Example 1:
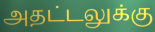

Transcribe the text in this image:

அதட்டலுக்கு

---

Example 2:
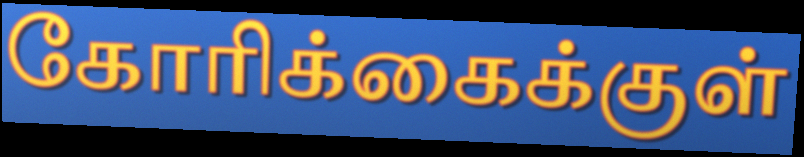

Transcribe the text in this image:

கோரிக்கைக்குள்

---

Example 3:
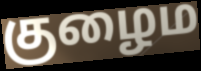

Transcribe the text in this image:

குழைம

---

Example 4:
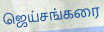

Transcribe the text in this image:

ஜெய்சங்கரை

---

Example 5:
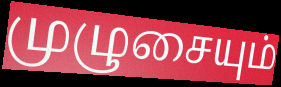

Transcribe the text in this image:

முழுசையும்